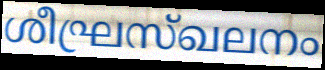
ശീഘ്രസ്ഖലനം